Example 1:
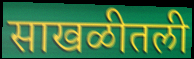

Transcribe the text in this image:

साखळीतली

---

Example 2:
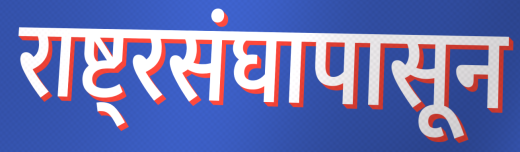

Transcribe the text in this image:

राष्ट्रसंघापासून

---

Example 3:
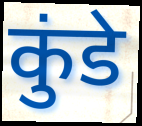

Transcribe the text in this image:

कुंडे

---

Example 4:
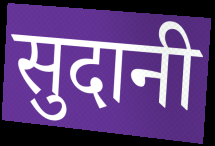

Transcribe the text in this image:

सुदानी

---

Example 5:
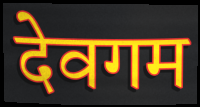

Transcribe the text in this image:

देवगम